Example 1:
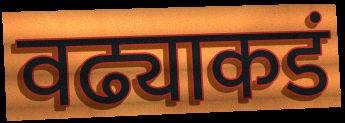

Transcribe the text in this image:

वढ्याकडं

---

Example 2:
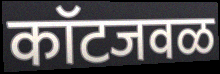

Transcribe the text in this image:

कॉटजवळ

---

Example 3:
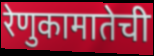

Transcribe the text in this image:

रेणुकामातेची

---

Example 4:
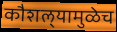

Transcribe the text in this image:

कौशल्यामुळेच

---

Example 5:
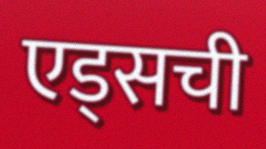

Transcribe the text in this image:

एड्सची